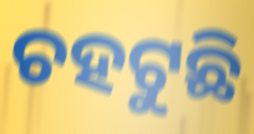
ଚହଟୁଛି